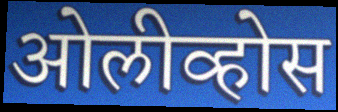
ओलीव्होस